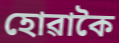
হোৱাকৈ